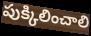
పుక్కిలించాలి